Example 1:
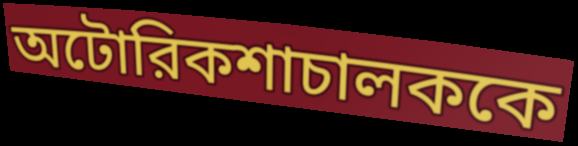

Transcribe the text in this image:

অটোরিকশাচালককে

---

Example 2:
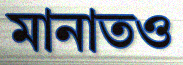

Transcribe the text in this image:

মানাতও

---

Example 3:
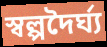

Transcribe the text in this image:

স্বল্পদৈর্ঘ্য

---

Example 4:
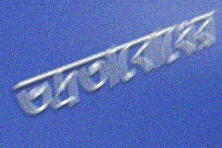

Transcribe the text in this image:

ভদ্রতাবোধের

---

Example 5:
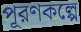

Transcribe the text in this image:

পূরণকল্পে